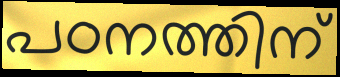
പഠനത്തിന്